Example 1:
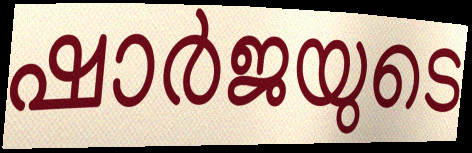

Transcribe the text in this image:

ഷാർജയുടെ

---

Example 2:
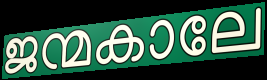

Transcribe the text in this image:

ജന്മകാലേ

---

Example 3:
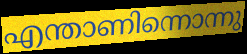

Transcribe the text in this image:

എന്താണിന്നൊന്നു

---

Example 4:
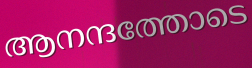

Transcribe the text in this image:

ആനന്ദത്തോടെ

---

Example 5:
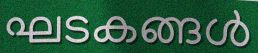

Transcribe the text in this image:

ഘടകങ്ങൾ